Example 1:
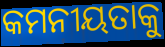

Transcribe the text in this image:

କମନୀୟତାକୁ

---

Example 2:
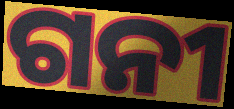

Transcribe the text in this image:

ଗନୀ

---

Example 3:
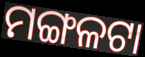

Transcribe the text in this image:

ମଙ୍ଗଳଟା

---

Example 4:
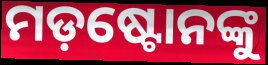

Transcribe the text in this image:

ମଡ଼ଷ୍ଟୋନଙ୍କୁ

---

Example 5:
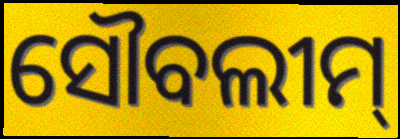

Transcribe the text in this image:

ସୌବଲୀମ୍